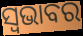
ସ୍ୱଭାବର